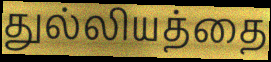
துல்லியத்தை